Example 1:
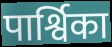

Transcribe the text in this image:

पार्श्विका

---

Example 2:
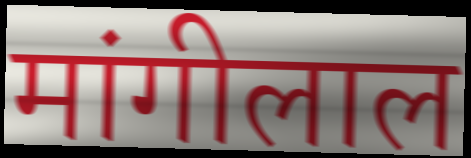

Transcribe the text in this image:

मांगीलाल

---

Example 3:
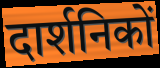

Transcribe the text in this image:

दार्शनिकों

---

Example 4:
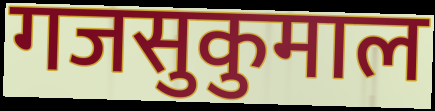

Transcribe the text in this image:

गजसुकुमाल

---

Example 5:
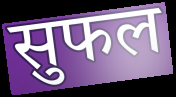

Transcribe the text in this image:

सुफल